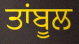
ਤਾਂਬੂਲ